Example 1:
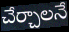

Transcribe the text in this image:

చేర్చాలనే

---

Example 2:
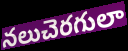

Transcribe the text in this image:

నలుచెరగులా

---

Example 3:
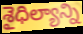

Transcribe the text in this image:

శైధిల్యాన్ని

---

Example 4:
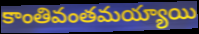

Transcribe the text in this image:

కాంతివంతమయ్యాయి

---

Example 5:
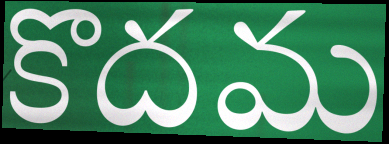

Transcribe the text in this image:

కొదమ